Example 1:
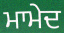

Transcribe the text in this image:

ਮਾਮੇਦ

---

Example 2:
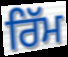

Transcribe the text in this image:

ਰਿੱਮ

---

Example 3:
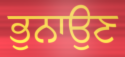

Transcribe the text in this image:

ਭੁਨਾਉਣ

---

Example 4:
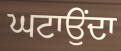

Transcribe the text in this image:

ਘਟਾਉਂਦਾ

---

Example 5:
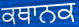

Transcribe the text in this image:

ਕਥਾਨਕ